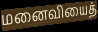
மனைவியைத்